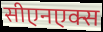
सीएनएक्स